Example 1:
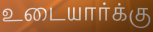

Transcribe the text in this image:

உடையார்க்கு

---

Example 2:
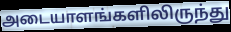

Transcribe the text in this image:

அடையாளங்களிலிருந்து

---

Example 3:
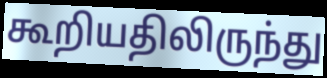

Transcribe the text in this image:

கூறியதிலிருந்து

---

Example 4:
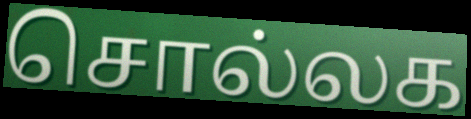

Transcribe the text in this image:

சொல்லக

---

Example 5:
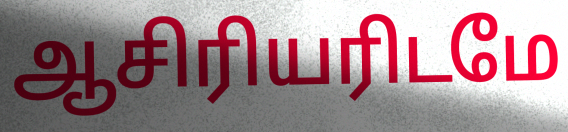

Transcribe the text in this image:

ஆசிரியரிடமே